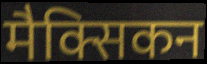
मैक्सिकन